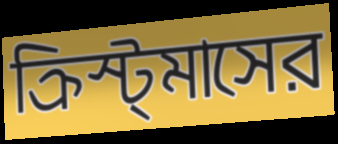
ক্রিস্ট্‌মাসের